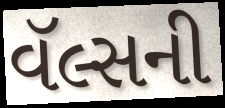
વૅલ્સની